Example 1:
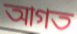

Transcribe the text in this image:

আগত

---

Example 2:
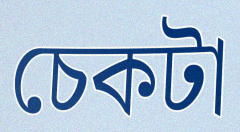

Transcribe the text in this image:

চেকটা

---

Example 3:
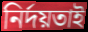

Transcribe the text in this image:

নির্দয়তাই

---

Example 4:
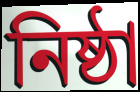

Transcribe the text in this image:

নিষ্ঠা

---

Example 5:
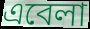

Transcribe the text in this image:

এবেলা